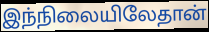
இந்நிலையிலேதான்